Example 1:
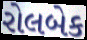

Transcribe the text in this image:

રોલબેક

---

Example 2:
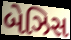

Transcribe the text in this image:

બેઝિસ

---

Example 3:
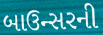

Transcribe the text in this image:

બાઉન્સરની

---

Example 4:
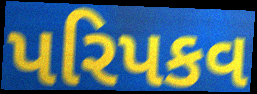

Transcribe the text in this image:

પરિપકવ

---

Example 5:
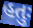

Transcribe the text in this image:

હતુઃ